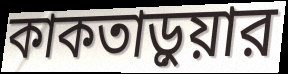
কাকতাড়ুয়ার